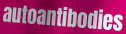
autoantibodies